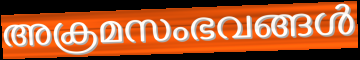
അക്രമസംഭവങ്ങൾ